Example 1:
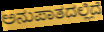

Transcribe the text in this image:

ಅನುಪಾತದಲ್ಲಿದೆ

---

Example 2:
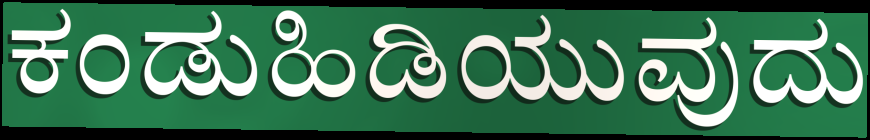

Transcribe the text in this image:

ಕಂಡುಹಿಡಿಯುವುದು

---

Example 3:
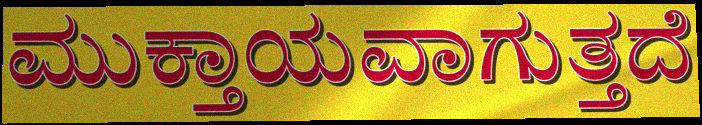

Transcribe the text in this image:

ಮುಕ್ತಾಯವಾಗುತ್ತದೆ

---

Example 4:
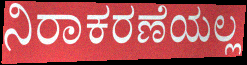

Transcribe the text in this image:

ನಿರಾಕರಣೆಯಲ್ಲ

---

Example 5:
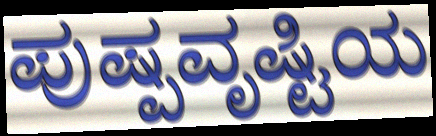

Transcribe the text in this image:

ಪುಷ್ಪವೃಷ್ಟಿಯ